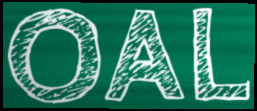
OAL